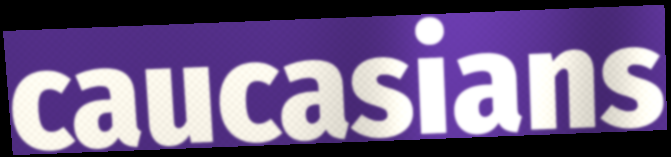
caucasians